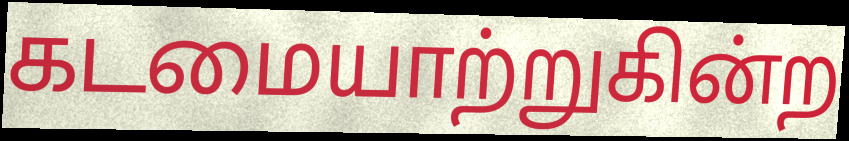
கடமையாற்றுகின்ற